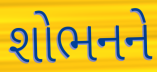
શોભનને